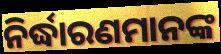
ନିର୍ଦ୍ଧାରଣମାନଙ୍କ